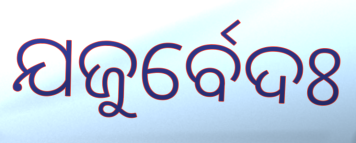
ଯଜୁର୍ବେଦଃ